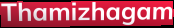
Thamizhagam